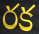
రక